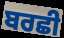
ਬਰਛੀ